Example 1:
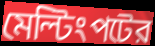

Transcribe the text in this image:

মেল্টিংপটের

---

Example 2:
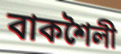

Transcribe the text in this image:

বাকশৈলী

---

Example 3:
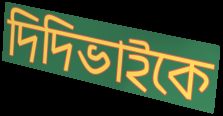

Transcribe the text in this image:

দিদিভাইকে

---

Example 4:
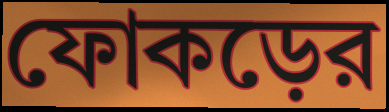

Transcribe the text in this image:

ফোকড়ের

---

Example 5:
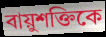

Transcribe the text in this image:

বায়ুশক্তিকে